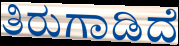
ತಿರುಗಾಡಿದೆ